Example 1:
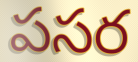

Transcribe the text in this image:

పసర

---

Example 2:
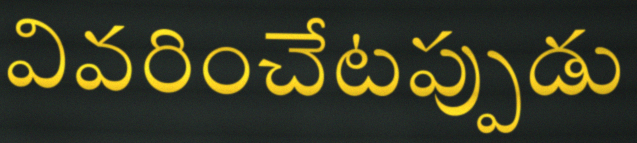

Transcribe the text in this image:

వివరించేటప్పుడు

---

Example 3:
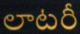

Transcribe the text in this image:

లాటరీ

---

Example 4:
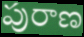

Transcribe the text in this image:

పురాణ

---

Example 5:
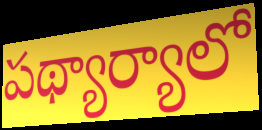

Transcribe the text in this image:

పథ్యార్యాలో